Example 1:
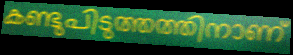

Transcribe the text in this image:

കണ്ടുപിടുത്തത്തിനാണ്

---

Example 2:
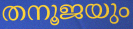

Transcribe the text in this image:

തനൂജയും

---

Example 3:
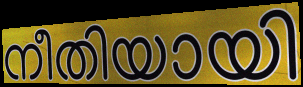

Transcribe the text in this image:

നീതിയായി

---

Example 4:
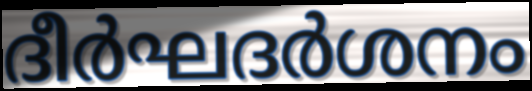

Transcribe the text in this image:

ദീർഘദർശനം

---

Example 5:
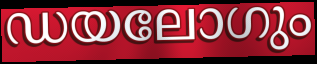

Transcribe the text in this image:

ഡയലോഗും